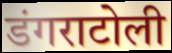
डंगराटोली